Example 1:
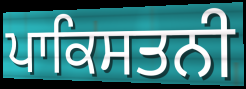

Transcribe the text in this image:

ਪਾਕਿਸਤਨੀ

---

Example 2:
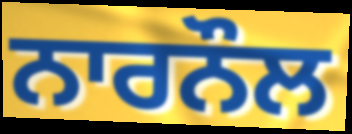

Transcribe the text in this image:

ਨਾਰਨੌਲ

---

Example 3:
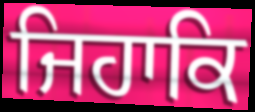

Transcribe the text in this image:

ਜਿਹਾਕਿ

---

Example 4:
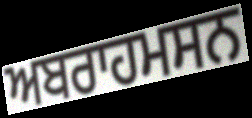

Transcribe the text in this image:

ਅਬਰਾਹਮਸਨ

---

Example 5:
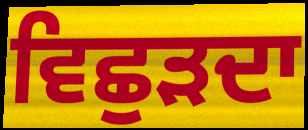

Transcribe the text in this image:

ਵਿਛੁੜਦਾ